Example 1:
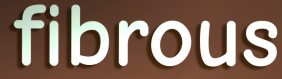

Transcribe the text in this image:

fibrous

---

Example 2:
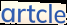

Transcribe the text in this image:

artcle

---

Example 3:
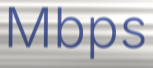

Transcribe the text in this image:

Mbps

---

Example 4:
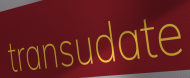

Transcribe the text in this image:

transudate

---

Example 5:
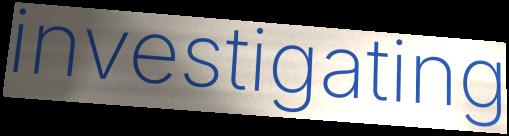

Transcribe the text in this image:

investigating